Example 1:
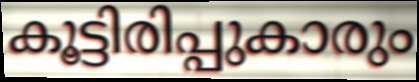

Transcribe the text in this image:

കൂട്ടിരിപ്പുകാരും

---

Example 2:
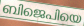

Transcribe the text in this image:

ബിജെപിയെ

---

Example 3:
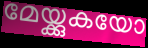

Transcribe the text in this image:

മേയ്ക്കുകയോ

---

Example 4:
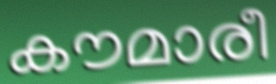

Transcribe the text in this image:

കൗമാരീ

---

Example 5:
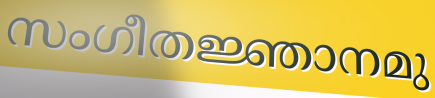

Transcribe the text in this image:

സംഗീതജ്ഞാനമു